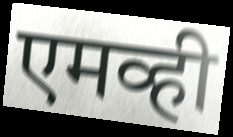
एमव्ही